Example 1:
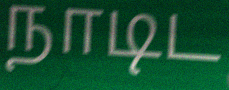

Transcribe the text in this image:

நாடிட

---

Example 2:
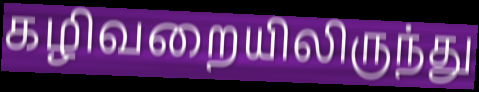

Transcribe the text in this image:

கழிவறையிலிருந்து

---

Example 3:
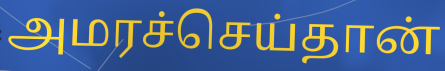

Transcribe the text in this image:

அமரச்செய்தான்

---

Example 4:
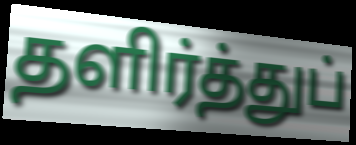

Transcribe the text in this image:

தளிர்த்துப்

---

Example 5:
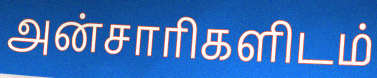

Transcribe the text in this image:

அன்சாரிகளிடம்